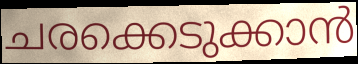
ചരക്കെടുക്കാൻ